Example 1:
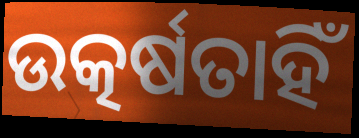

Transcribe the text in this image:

ଉତ୍କର୍ଷତାହିଁ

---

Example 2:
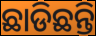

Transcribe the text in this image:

ଛାଡିଛନ୍ତି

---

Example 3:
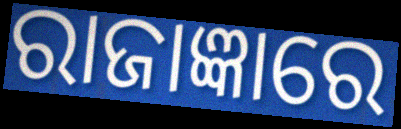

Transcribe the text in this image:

ରାଜାଜ୍ଞାରେ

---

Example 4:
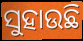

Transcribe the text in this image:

ସୁହାଉଛି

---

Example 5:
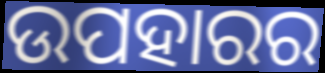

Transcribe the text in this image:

ଉପହାରର